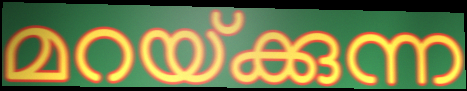
മറയ്‌ക്കുന്ന